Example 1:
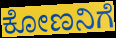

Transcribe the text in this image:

ಕೋಣನಿಗೆ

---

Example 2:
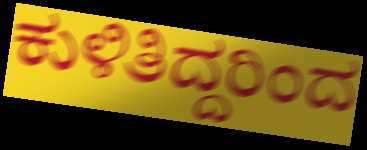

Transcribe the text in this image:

ಕುಳಿತಿದ್ದರಿಂದ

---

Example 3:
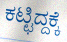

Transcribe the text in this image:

ಕಟ್ಟಿದ್ದಕ್ಕೆ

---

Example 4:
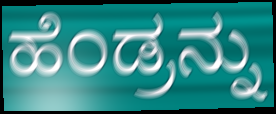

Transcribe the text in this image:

ಹೆಂಡ್ರನ್ನು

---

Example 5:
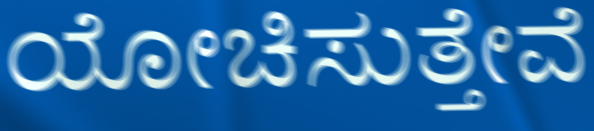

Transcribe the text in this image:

ಯೋಚಿಸುತ್ತೇವೆ